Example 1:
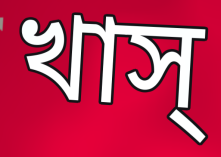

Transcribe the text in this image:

খাস্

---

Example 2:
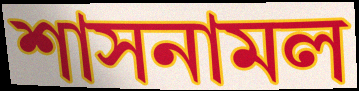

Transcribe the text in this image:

শাসনামল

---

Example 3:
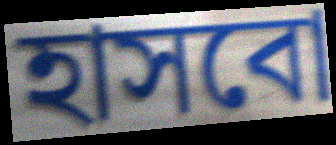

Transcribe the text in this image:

হাসবো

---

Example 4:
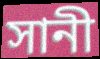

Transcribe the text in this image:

সানী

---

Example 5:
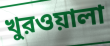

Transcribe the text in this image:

খুরওয়ালা